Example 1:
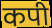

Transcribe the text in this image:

कपी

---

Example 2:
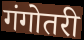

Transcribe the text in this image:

गंगोतरी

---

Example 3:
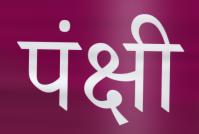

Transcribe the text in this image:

पंक्षी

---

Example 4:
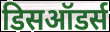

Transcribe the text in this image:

डिसऑडर्स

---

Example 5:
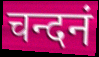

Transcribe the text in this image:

चन्दनं